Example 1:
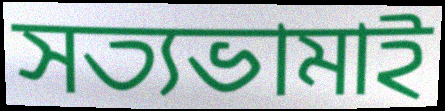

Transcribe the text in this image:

সত্যভামাই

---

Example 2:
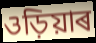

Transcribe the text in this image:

ওড়িয়াৰ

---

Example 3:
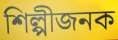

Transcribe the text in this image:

শিল্পীজনক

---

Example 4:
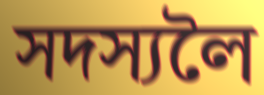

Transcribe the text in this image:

সদস্যলৈ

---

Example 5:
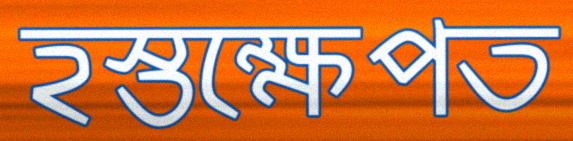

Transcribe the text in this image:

হস্তক্ষেপত